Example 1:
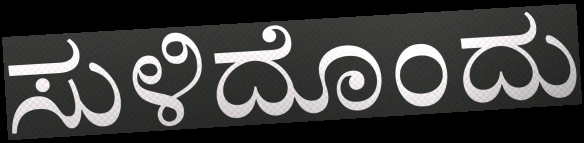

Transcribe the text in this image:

ಸುಳಿದೊಂದು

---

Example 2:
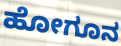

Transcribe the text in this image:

ಹೋಗೂನ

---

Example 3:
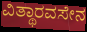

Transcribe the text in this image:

ವಿತ್ಥಾರವಸೇನ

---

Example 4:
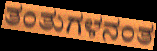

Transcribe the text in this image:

ತಂತುಗಳನಂತ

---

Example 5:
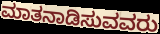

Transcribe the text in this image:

ಮಾತನಾಡಿಸುವವರು